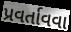
પ્રવર્તાવવા